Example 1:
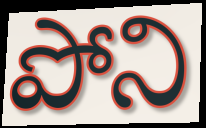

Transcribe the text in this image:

పోని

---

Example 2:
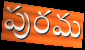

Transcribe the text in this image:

పురమ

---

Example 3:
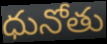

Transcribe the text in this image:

ధునోతు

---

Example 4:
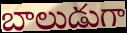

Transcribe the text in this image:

బాలుడుగా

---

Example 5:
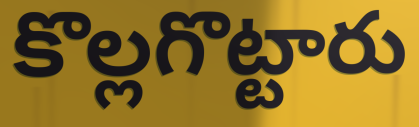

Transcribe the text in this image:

కొల్లగొట్టారు